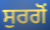
ਸੁਰਗੋਂ